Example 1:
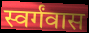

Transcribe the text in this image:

स्वर्गंवास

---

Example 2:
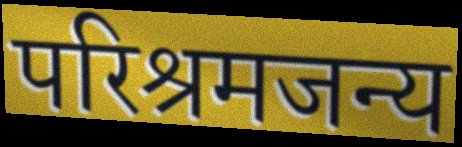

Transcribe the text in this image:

परिश्रमजन्य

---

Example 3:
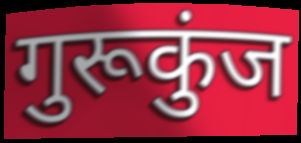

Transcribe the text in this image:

गुरूकुंज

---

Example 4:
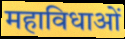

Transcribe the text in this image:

महाविधाओं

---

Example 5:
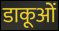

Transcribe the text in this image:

डाकूओं